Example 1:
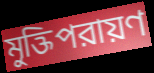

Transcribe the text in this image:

মুক্তিপরায়ণ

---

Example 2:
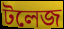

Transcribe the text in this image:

টলেজ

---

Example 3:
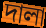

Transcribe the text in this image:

দালা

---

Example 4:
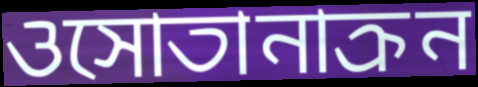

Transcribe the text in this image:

ওসোতানাক্রন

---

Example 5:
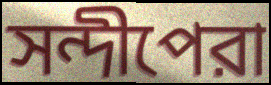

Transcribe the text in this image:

সন্দীপেরা